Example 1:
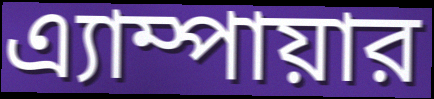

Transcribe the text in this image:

এ্যাম্পায়ার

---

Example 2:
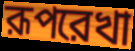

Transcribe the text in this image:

রূপরেখা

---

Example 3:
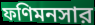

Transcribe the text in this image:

ফণিমনসার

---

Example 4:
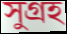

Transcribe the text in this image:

সুগ্রহ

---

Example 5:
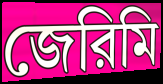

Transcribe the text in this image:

জেরিমি